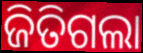
ଜିତିଗଲା